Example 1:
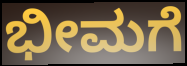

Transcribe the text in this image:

ಭೀಮಗೆ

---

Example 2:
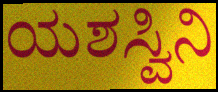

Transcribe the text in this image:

ಯಶಸ್ವಿನಿ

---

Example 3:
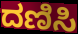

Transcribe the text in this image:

ದಣಿಸಿ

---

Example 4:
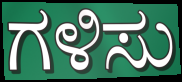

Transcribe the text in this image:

ಗಳಿಸು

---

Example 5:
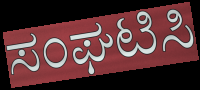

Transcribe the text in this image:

ಸಂಘಟಿಸಿ